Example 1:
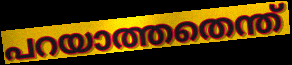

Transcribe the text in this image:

പറയാത്തതെന്ത്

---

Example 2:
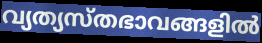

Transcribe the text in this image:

വ്യത്യസ്തഭാവങ്ങളിൽ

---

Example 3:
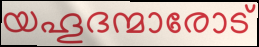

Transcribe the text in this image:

യഹൂദന്മാരോട്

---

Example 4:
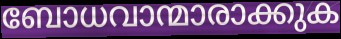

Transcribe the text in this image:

ബോധവാന്മാരാക്കുക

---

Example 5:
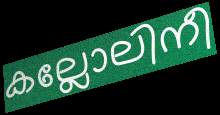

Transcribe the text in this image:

കല്ലോലിനീ